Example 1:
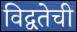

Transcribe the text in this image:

विद्वतेची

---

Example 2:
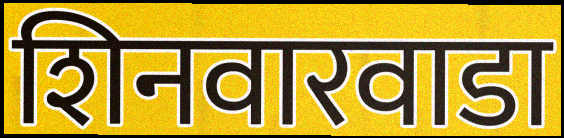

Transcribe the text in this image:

शिनवारवाडा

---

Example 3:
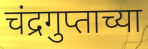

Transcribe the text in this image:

चंद्रगुप्ताच्या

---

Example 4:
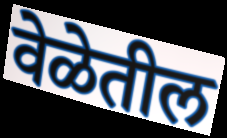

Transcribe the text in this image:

वेळेतील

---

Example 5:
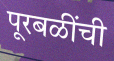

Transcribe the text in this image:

पूरबळींची